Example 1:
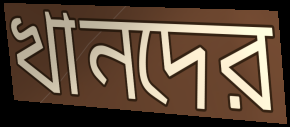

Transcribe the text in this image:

খানদের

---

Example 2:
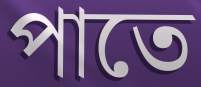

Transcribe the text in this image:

পাতে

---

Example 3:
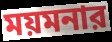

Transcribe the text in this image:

ময়মনার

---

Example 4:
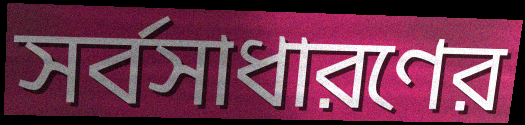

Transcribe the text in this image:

সর্বসাধারণের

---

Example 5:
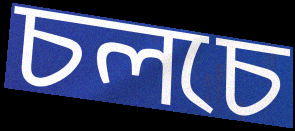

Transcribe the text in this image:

চলচে